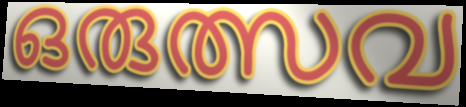
ഒരുത്സവ